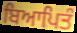
ਬਿਆਪਿਤੰ